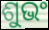
ଶୁଭଂ